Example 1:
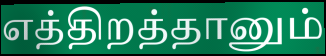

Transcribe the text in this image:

எத்திறத்தானும்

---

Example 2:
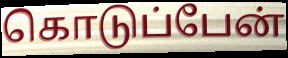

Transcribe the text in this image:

கொடுப்பேன்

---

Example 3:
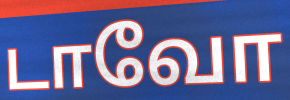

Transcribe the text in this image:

டாவோ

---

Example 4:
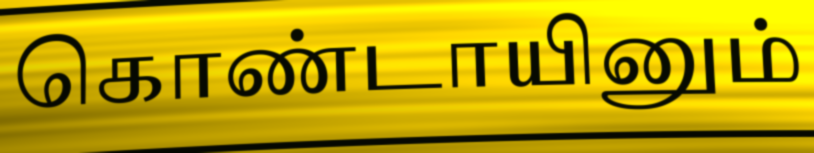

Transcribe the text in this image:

கொண்டாயினும்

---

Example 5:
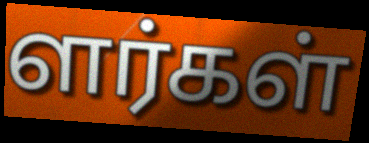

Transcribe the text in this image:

ளர்கள்